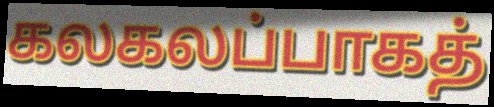
கலகலப்பாகத்